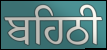
ਬਹਿਠੀ